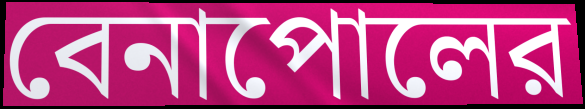
বেনাপোলের